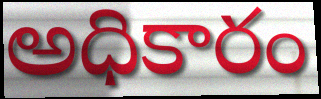
అధికారం